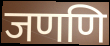
जणणि